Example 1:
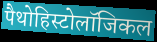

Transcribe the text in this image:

पैथोहिस्टोलॉजिकल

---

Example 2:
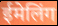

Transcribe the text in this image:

ईमेलिंग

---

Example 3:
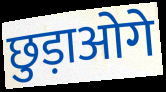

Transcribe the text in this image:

छुड़ाओगे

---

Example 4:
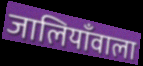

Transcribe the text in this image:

जालियाँवाला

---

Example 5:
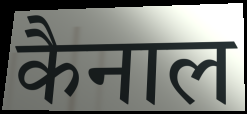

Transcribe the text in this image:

कैनाल